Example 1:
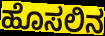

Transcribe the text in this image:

ಹೊಸಲಿನ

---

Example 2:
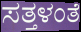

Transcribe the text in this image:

ಸತ್ತಳಂತೆ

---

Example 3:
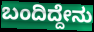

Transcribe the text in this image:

ಬಂದಿದ್ದೇನು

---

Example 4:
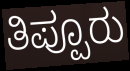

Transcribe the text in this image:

ತಿಪ್ಪೂರು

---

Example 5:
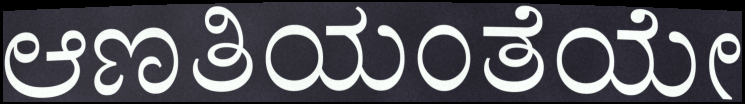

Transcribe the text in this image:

ಆಣತಿಯಂತೆಯೇ